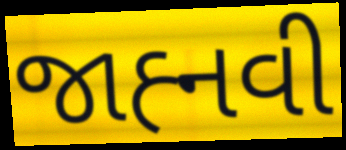
જાહ્‍નવી